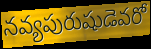
నవ్యపురుషుడెవరో